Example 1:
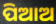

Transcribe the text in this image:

ପିଆଅ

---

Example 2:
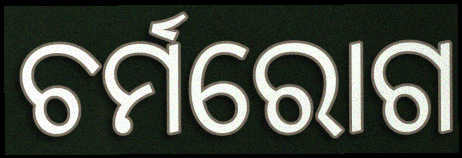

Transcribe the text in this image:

ଚର୍ମରୋଗ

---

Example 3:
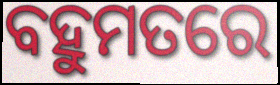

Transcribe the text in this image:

ବହୁମତରେ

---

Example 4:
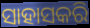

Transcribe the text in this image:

ସାହାସକରି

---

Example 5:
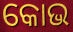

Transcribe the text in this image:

କୋଭ